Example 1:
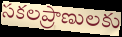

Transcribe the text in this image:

సకలప్రాణులకు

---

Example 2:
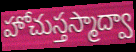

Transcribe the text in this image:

హోచుస్తస్మాద్వా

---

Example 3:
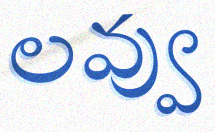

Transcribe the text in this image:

లవ్వు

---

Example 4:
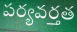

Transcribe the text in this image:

పర్యవర్తత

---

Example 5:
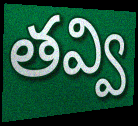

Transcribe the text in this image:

తవ్వి